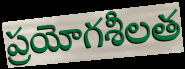
ప్రయోగశీలత